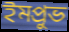
ইমপ্রুভ